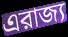
এরাজ্য